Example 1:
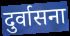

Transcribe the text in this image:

दुर्वासना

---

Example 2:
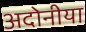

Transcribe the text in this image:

अदोनीया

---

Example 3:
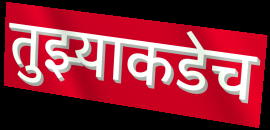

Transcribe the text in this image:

तुझ्याकडेच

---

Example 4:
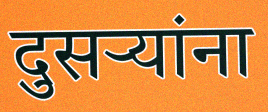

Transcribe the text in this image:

दुसऱ्यांना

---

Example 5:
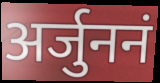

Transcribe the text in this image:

अर्जुननं